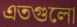
এতগুলো